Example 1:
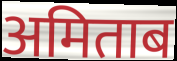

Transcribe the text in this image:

अमिताब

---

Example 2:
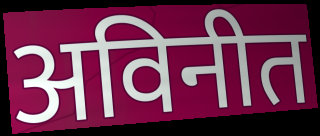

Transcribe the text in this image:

अविनीत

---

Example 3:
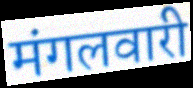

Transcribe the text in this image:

मंगलवारी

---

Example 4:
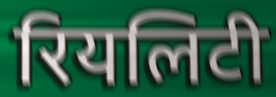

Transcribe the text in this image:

रियलिटी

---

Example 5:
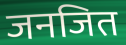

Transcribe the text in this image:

जनजित